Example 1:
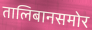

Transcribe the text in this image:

तालिबानसमोर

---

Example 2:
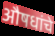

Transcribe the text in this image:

औषधांचे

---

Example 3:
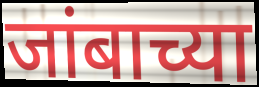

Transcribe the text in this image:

जांबाच्या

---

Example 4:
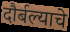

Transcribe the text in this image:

दौर्बल्याचे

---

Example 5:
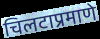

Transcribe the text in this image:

चिलटाप्रमाणे